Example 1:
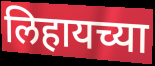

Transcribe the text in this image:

लिहायच्या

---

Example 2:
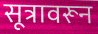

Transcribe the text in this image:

सूत्रावरून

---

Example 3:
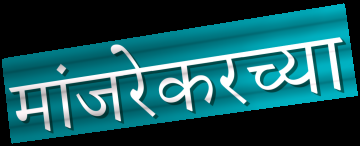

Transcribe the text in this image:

मांजरेकरच्या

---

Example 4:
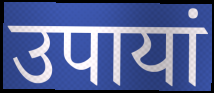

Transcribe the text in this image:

उपायां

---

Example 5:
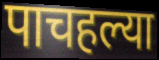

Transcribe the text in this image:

पाचहल्या